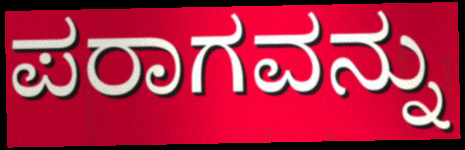
ಪರಾಗವನ್ನು